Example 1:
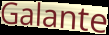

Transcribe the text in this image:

Galante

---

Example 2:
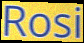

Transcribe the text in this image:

Rosi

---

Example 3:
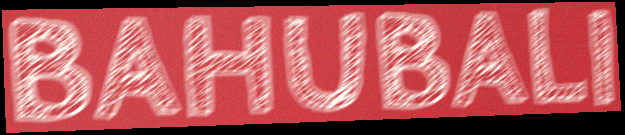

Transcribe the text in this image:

BAHUBALI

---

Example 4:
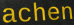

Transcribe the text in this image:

achen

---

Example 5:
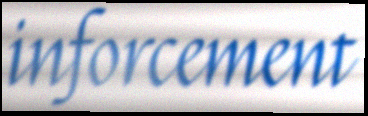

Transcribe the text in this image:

inforcement